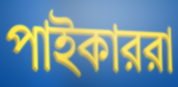
পাইকাররা